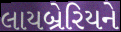
લાયબ્રેરિયને